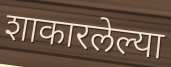
शाकारलेल्या